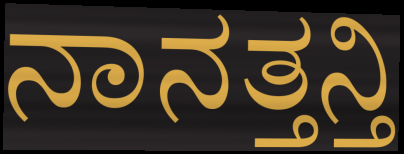
ನಾನತ್ತನ್ತಿ